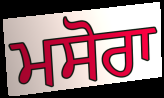
ਮਸੋਰਾ